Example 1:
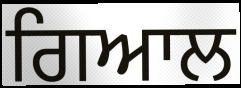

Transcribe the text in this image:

ਗਿਆਲ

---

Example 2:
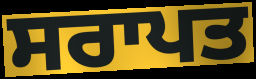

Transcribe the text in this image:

ਸਰਾਪਤ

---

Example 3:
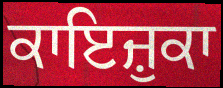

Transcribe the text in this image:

ਕਾਇਜ਼ੁਕਾ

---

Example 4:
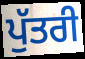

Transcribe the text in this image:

ਪੁੱਤਰੀ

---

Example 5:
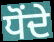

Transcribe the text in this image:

ਧੋਂਦੇ